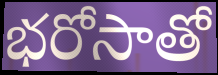
భరోసాతో